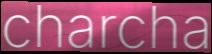
charcha